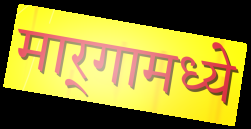
मार्गामध्ये